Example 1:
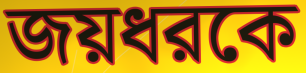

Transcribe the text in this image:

জয়ধরকে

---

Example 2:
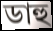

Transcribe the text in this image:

ডাহু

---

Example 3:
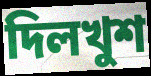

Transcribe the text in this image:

দিলখুশ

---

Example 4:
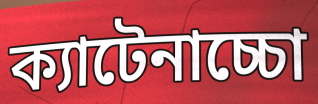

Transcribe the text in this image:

ক্যাটেনাচ্চো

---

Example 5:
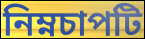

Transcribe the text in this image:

নিম্নচাপটি